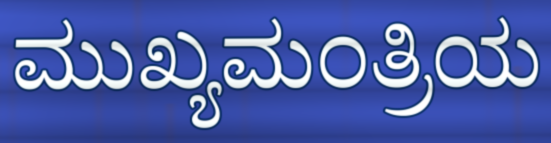
ಮುಖ್ಯಮಂತ್ರಿಯ